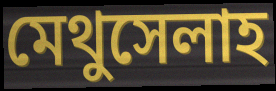
মেথুসেলাহ